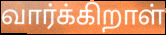
வார்க்கிறாள்